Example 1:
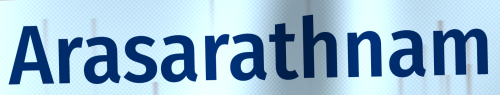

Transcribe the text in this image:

Arasarathnam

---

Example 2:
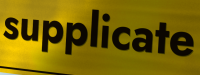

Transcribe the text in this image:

supplicate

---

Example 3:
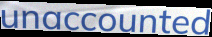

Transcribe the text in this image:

unaccounted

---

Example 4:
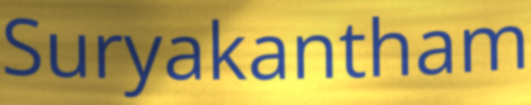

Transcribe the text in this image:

Suryakantham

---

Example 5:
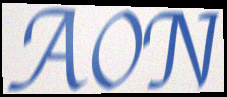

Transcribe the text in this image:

AON